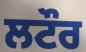
ਲਟੌਰ